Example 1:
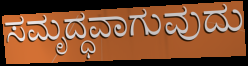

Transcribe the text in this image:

ಸಮೃದ್ಧವಾಗುವುದು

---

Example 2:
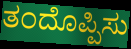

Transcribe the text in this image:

ತಂದೊಪ್ಪಿಸು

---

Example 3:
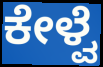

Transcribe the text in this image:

ಕೇಳ್ವೆ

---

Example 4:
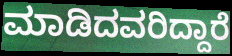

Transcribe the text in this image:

ಮಾಡಿದವರಿದ್ದಾರೆ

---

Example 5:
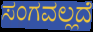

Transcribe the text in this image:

ಸಂಗವಲ್ಲದೆ